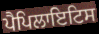
ਪੈਪਿਲਾਇਟਿਸ